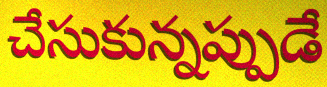
చేసుకున్నప్పుడే